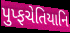
પુપ્ફચેતિયાનિ